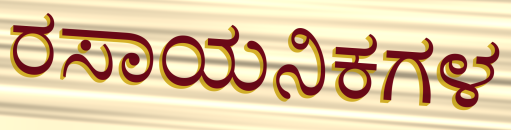
ರಸಾಯನಿಕಗಳ